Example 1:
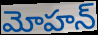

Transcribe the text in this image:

మోహన్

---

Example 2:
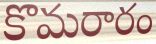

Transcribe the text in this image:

కొమరారం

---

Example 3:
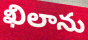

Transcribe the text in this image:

ఖిలాను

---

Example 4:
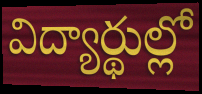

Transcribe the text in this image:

విద్యార్థుల్లో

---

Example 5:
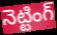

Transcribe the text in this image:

నెట్టింగ్